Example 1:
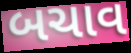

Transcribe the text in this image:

બચાવ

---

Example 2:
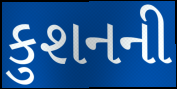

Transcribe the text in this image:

કુશનની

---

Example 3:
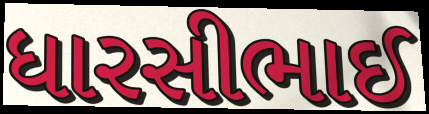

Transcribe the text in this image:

ધારસીભાઈ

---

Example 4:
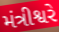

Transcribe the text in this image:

મંત્રીશ્વરે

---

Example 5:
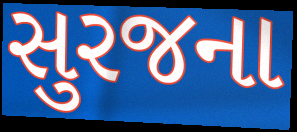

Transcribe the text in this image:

સુરજના